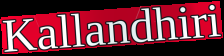
Kallandhiri